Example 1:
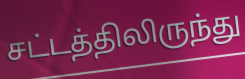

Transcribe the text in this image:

சட்டத்திலிருந்து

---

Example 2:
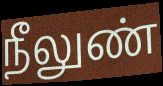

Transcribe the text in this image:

நீலுண்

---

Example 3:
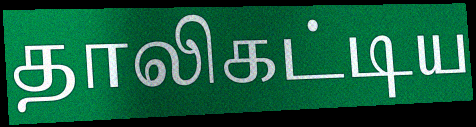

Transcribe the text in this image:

தாலிகட்டிய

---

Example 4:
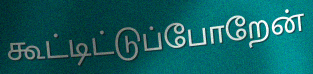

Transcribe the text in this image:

கூட்டிட்டுப்போறேன்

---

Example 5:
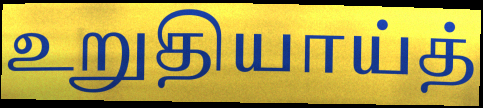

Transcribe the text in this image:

உறுதியாய்த்